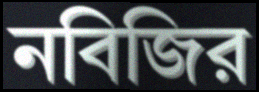
নবিজির